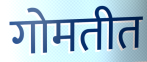
गोमतीत